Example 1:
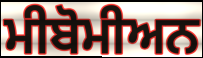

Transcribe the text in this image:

ਮੀਬੋਮੀਅਨ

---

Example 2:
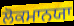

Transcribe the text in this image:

ਲੋਕਮਾਨਯਾ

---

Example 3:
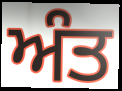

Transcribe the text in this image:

ਅੰਤ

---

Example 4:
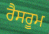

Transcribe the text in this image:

ਰੈਸਰੂਮ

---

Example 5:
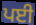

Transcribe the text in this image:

ਪਈ